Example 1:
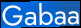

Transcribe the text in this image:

Gabaa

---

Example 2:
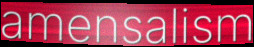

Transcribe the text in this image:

amensalism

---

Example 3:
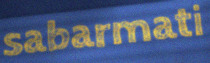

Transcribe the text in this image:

sabarmati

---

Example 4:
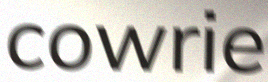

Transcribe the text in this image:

cowrie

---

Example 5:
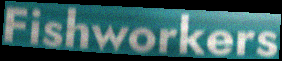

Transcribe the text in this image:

Fishworkers